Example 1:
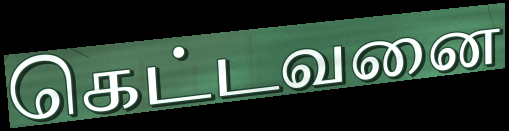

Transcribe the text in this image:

கெட்டவனை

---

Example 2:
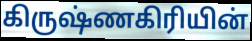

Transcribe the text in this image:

கிருஷ்ணகிரியின்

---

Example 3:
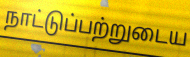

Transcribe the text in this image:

நாட்டுப்பற்றுடைய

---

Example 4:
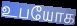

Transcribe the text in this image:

உபயோக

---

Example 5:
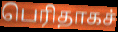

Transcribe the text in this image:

பெரிதாகச்